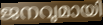
ജനവുമായി